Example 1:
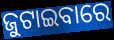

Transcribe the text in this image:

ଜୁଟାଇବାରେ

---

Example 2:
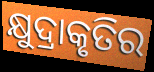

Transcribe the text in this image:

କ୍ଷୁଦ୍ରାକୃତିର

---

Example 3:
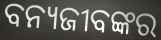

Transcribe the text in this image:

ବନ୍ୟଜୀବଙ୍କର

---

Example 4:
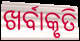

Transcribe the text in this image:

ଖର୍ବାକୃତି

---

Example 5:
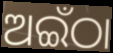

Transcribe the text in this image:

ଅଇଁଠା